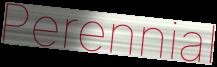
Perennial